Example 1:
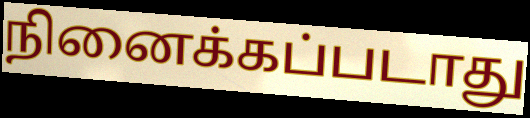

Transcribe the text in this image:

நினைக்கப்படாது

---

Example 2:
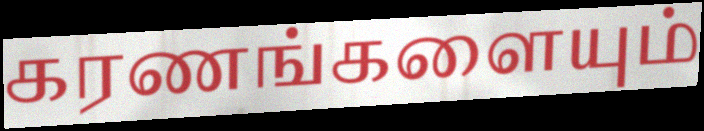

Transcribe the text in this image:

கரணங்களையும்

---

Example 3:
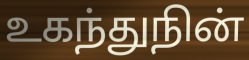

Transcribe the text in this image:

உகந்துநின்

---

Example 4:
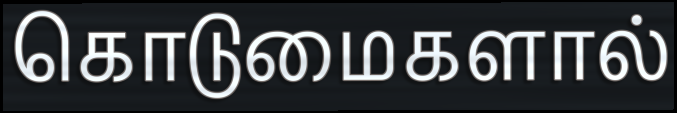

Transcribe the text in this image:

கொடுமைகளால்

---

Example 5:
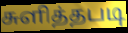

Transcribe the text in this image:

சுளித்தபடி